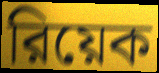
রিয়েক